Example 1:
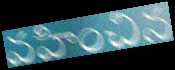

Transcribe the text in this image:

వహించిన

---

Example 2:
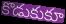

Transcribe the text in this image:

కొడుకుకూ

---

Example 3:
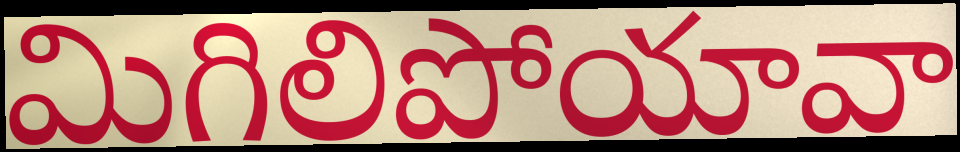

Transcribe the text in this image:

మిగిలిపోయావా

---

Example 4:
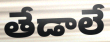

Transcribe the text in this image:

తేడాలే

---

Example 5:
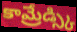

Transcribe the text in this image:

కామ్రేడ్స్కి